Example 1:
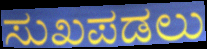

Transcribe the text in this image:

ಸುಖಪಡಲು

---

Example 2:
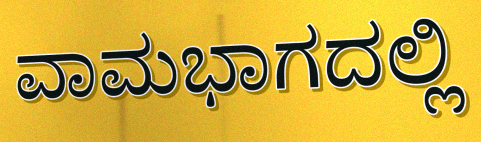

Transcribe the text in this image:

ವಾಮಭಾಗದಲ್ಲಿ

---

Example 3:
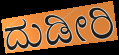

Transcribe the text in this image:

ದುಡೀರಿ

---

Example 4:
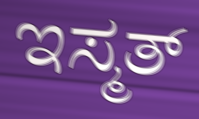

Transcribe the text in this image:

ಇಸ್ಮತ್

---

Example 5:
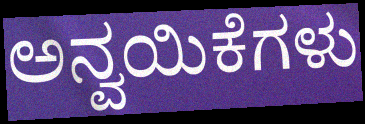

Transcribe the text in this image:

ಅನ್ವಯಿಕೆಗಳು